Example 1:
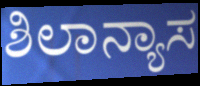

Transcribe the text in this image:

ಶಿಲಾನ್ಯಾಸ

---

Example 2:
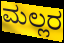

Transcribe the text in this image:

ಮಲ್ಲರ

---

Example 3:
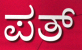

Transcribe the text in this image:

ಪತ್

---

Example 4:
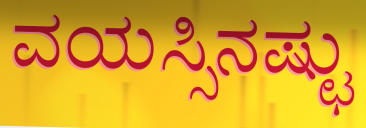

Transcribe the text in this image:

ವಯಸ್ಸಿನಷ್ಟು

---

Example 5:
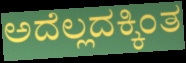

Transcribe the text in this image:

ಅದೆಲ್ಲದಕ್ಕಿಂತ